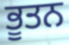
ਭੂਤਨ